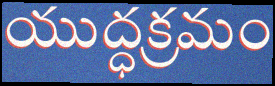
యుద్ధక్రమం